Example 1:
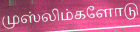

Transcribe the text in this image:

முஸ்லிம்களோடு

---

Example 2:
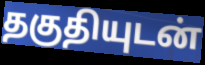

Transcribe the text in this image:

தகுதியுடன்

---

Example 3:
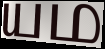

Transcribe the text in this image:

யம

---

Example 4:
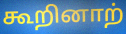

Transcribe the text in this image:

கூறினாற்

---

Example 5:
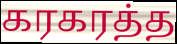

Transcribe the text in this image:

கரகரத்த